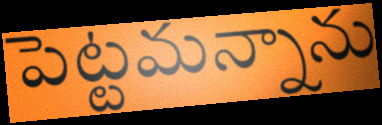
పెట్టమన్నాను